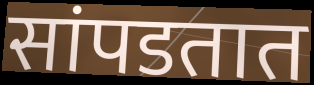
सांपडतात